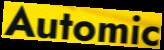
Automic